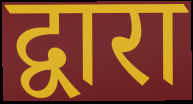
द्वारा